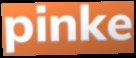
pinke